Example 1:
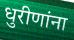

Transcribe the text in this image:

धुरीणांना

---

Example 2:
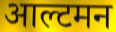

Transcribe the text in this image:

आल्टमन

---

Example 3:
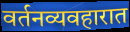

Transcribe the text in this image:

वर्तनव्यवहारात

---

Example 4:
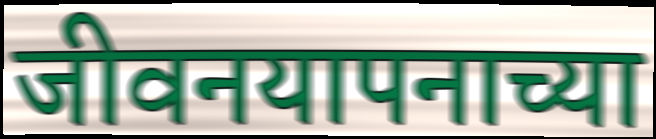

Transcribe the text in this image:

जीवनयापनाच्या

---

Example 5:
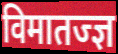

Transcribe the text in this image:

विमातज्ज्ञ